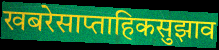
खबरेसाप्ताहिकसुझाव